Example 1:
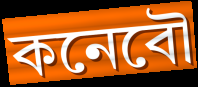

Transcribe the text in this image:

কনেবৌ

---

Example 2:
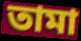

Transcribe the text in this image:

তামা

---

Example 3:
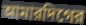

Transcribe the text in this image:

আমারদিগের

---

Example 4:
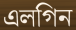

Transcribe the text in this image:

এলগিন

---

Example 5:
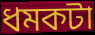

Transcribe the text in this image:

ধমকটা